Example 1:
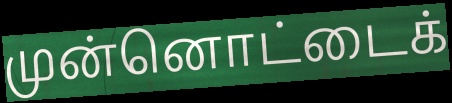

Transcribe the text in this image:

முன்னொட்டைக்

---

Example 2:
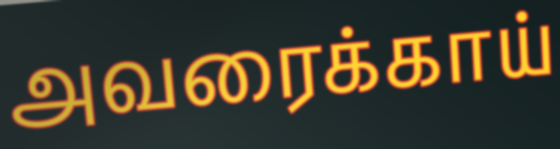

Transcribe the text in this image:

அவரைக்காய்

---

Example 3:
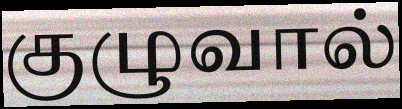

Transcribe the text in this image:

குழுவால்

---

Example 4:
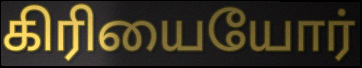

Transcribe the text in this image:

கிரியையோர்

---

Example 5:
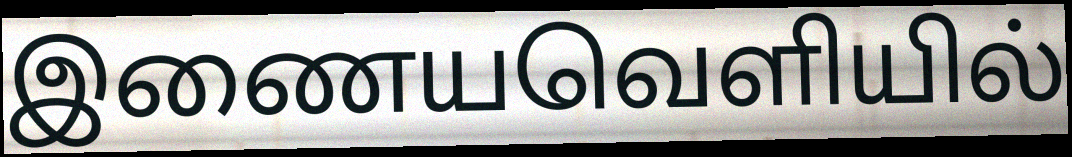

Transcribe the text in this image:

இணையவெளியில்